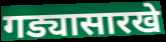
गड्यासारखे